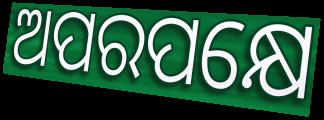
ଅପରପକ୍ଷେ